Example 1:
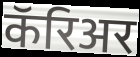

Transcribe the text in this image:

कॅरिअर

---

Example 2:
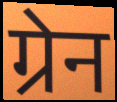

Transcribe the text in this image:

ग्रेन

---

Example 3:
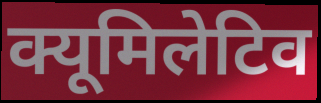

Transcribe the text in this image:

क्यूमिलेटिव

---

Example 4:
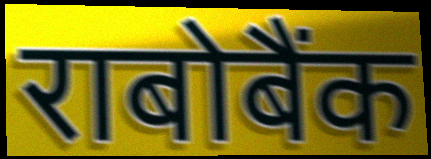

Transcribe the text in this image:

राबोबैंक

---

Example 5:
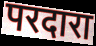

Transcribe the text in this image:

परदारा